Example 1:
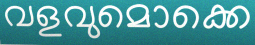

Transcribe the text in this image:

വളവുമൊക്കെ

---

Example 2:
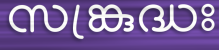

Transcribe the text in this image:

സങ്ക്രുദ്ധഃ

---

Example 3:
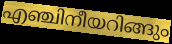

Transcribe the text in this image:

എഞ്ചിനീയറിങ്ങും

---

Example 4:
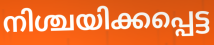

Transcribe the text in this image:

നിശ്ചയിക്കപ്പെട്ട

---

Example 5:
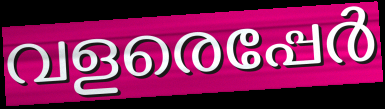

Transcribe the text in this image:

വളരെപ്പേർ